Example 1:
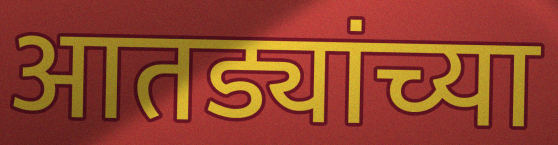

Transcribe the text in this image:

आतड्यांच्या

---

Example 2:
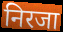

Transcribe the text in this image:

निरजा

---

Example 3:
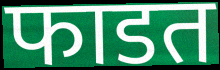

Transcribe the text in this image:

फाडत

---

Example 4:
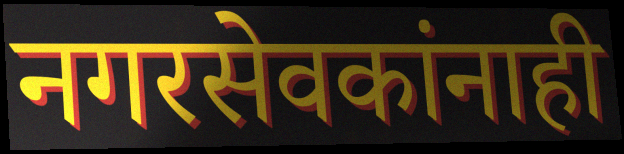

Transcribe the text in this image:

नगरसेवकांनाही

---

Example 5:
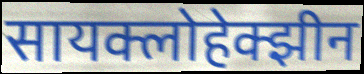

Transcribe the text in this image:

सायक्लोहेक्झीन